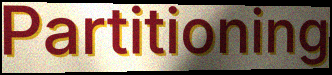
Partitioning